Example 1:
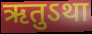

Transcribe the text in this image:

ऋतुऽथा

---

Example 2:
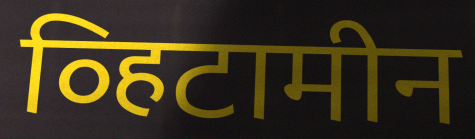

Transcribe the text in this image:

व्हिटामीन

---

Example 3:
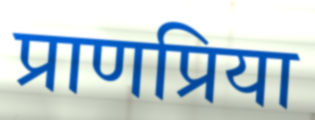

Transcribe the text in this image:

प्राणप्रिया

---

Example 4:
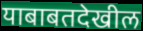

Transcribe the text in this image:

याबाबतदेखील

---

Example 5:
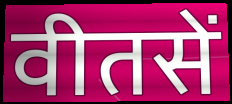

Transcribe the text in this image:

वीतसें